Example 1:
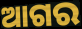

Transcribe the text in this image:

ଆଗର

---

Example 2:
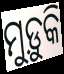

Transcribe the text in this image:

ମୁଡ଼ୁକି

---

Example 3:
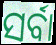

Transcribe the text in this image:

ସର୍ବା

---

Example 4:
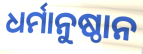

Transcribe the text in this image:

ଧର୍ମାନୁଷ୍ଠାନ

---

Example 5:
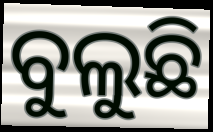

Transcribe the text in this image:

ବୁଲୁଛି